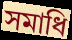
সমাধি